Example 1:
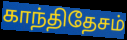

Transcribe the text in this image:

காந்திதேசம்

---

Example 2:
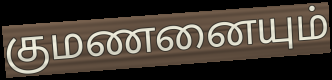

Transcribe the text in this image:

குமணனையும்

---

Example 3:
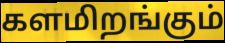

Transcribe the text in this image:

களமிறங்கும்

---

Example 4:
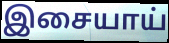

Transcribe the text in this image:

இசையாய்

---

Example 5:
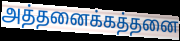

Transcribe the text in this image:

அத்தனைக்கத்தனை